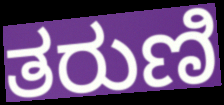
ತರುಣಿ